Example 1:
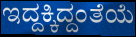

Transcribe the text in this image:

ಇದ್ದಕ್ಕಿದ್ದಂತೆಯೆ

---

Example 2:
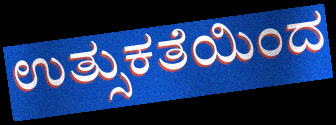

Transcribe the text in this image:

ಉತ್ಸುಕತೆಯಿಂದ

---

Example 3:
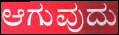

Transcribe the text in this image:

ಆಗುವುದು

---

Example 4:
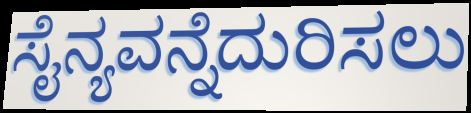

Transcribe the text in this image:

ಸೈನ್ಯವನ್ನೆದುರಿಸಲು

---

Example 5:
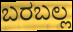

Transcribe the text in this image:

ಬರಬಲ್ಲ